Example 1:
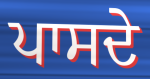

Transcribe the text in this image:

ਪਾਸਦੇ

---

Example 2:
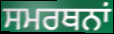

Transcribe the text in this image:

ਸਮਰਥਨਾਂ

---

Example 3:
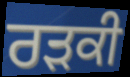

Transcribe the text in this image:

ਰੜਕੀ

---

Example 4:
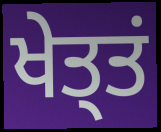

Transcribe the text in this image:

ਖੇਤ੍ਤਂ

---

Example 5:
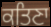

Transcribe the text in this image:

ਕਤਿਣਾ